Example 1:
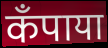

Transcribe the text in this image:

कँपाया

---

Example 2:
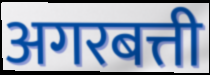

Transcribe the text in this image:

अगरबत्ती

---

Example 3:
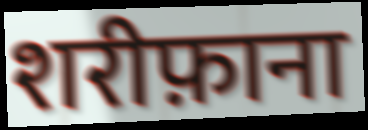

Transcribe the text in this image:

शरीफ़ाना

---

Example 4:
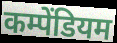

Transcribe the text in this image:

कम्पेंडियम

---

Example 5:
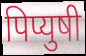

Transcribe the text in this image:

पिप्युषी